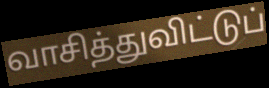
வாசித்துவிட்டுப்